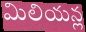
మిలియన్ల